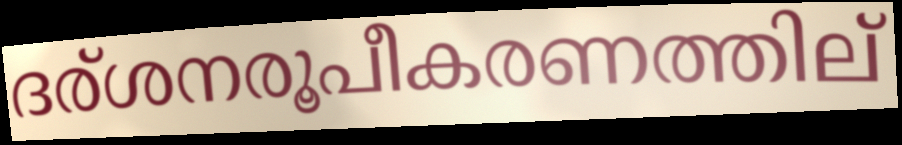
ദര്ശനരൂപീകരണത്തില്